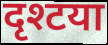
दृश्टया